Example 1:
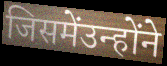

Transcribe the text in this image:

जिसमेंउन्होंने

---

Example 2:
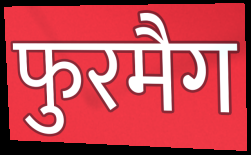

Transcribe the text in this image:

फुरमैग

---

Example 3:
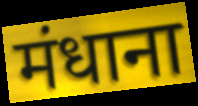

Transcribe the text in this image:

मंधाना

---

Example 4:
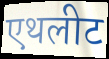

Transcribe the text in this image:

एथलीट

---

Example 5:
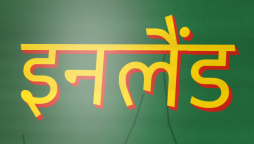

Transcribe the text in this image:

इनलैंड